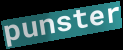
punster